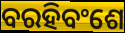
ବରହିବଂଶେ